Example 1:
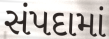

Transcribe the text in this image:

સંપદામાં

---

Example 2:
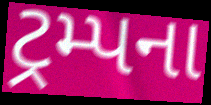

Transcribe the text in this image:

ટ્રમ્પના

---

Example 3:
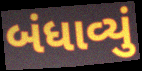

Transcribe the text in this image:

બંધાવ્યું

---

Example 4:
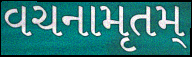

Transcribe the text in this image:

વચનામૃતમ્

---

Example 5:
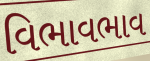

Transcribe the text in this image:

વિભાવભાવ